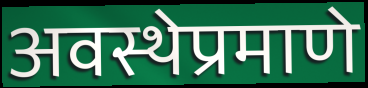
अवस्थेप्रमाणे